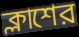
ক্লাশের